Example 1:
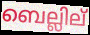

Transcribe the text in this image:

ബെല്ലില്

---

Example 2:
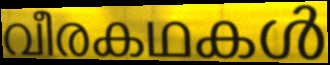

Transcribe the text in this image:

വീരകഥകൾ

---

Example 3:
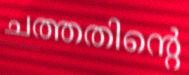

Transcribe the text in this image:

ചത്തതിന്റെ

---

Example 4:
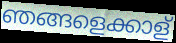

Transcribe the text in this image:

ഞങ്ങളെക്കാള്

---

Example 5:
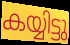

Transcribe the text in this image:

കയ്യിട്ടു